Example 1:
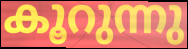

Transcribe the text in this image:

കൂറുന്നു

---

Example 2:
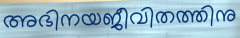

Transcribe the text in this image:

അഭിനയജീവിതത്തിനു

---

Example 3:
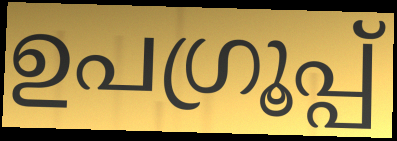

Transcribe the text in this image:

ഉപഗ്രൂപ്പ്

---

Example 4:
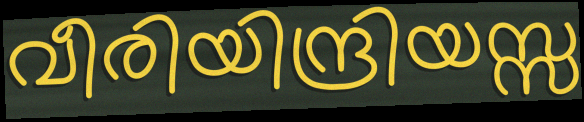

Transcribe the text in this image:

വീരിയിന്ദ്രിയസ്സ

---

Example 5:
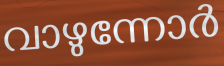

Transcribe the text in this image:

വാഴുന്നോർ